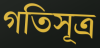
গতিসূত্র